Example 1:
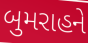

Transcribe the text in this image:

બુમરાહને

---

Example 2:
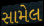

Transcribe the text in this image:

સામેલ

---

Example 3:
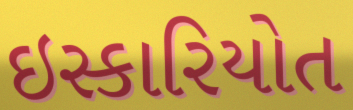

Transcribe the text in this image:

ઇસ્કારિયોત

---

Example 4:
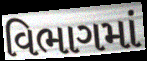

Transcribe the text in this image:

વિભાગમાં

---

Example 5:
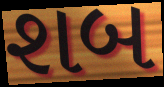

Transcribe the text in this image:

શબ